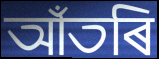
আঁতৰি